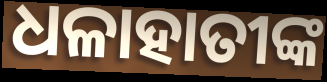
ଧଳାହାତୀଙ୍କ